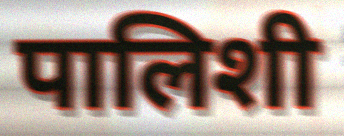
पालिशी